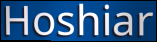
Hoshiar